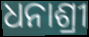
ଧନାଶ୍ରୀ